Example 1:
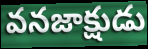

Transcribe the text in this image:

వనజాక్షుడు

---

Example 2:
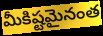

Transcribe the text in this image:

మీకిష్టమైనంత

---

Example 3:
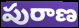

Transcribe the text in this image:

పురాణ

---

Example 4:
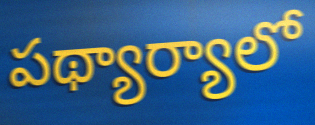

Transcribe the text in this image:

పథ్యార్యాలో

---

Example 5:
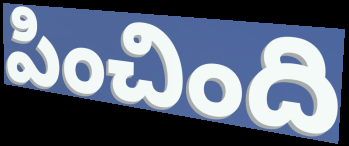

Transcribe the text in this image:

పించింది